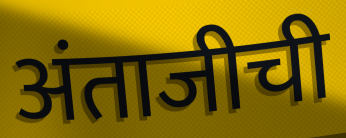
अंताजीची